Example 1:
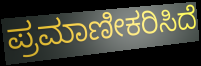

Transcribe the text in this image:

ಪ್ರಮಾಣೀಕರಿಸಿದೆ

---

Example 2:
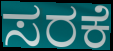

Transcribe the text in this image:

ಸರಕೆ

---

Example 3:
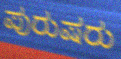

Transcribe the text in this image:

ಪುರುಷರು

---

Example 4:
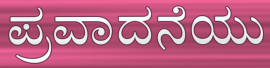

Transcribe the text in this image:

ಪ್ರವಾದನೆಯು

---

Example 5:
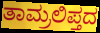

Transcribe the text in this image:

ತಾಮ್ರಲಿಪ್ತದ